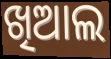
ଖିଆଲ